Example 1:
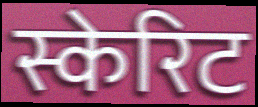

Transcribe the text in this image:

स्केरिट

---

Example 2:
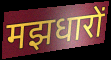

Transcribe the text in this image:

मझधारों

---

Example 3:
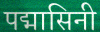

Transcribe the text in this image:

पद्मासिनी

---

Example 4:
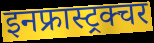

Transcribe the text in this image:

इनफ्रास्ट्रक्चर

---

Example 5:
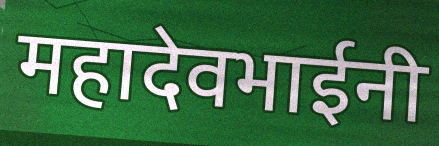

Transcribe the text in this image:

महादेवभाईनी